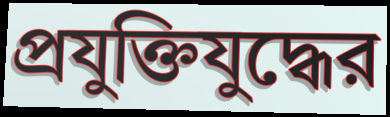
প্রযুক্তিযুদ্ধের